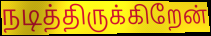
நடித்திருக்கிறேன்